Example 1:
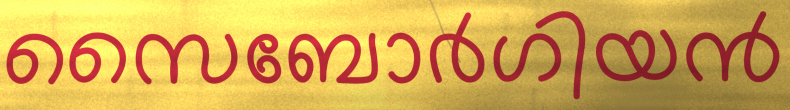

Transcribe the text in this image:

സൈബോർഗിയൻ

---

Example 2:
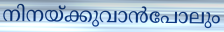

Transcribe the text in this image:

നിനയ്ക്കുവാൻപോലും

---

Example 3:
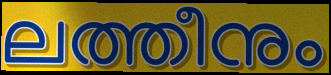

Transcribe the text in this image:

ലത്തീനും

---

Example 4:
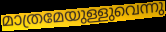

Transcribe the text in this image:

മാത്രമേയുള്ളുവെന്നു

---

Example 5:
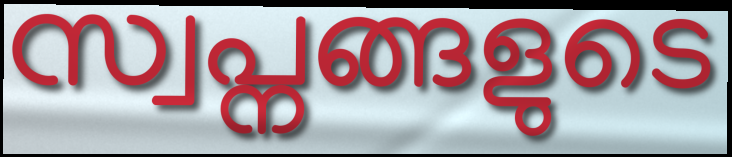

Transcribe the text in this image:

സ്വപ്നങ്ങളുടെ